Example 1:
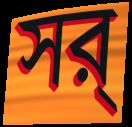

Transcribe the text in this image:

সর্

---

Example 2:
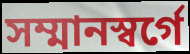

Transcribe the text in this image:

সম্মানস্বর্গে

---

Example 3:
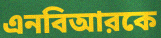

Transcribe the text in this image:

এনবিআরকে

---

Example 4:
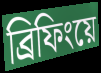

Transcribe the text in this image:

ব্রিফিংয়ে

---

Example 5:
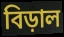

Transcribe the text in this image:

বিড়াল